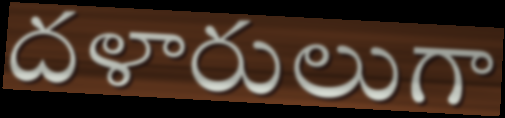
దళారులుగా